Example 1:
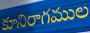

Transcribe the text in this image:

కూనిరాగముల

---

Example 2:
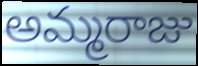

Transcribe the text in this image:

అమ్మరాజు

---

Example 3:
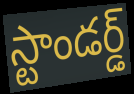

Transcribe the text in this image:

స్టాండర్డ్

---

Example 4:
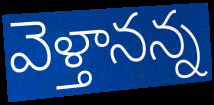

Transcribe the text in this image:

వెళ్తానన్న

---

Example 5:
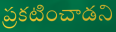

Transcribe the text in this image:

ప్రకటించాడని